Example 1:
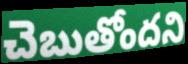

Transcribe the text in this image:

చెబుతోందని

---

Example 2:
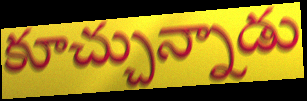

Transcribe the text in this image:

కూచ్చున్నాడు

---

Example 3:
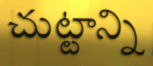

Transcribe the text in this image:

చుట్టాన్ని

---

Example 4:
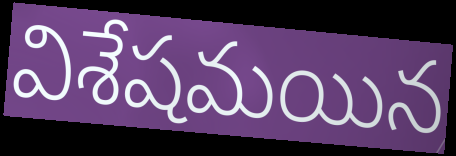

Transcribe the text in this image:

విశేషమయిన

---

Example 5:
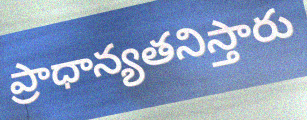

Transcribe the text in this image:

ప్రాధాన్యతనిస్తారు